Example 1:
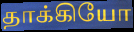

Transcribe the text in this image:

தாக்கியோ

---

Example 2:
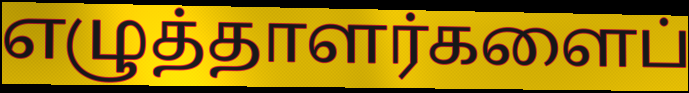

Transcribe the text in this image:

எழுத்தாளர்களைப்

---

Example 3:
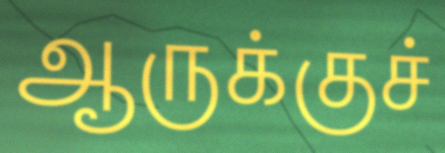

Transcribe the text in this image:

ஆருக்குச்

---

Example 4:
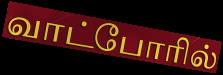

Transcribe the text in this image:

வாட்போரில்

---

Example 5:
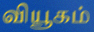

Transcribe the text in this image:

வியூகம்